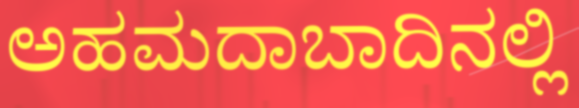
ಅಹಮದಾಬಾದಿನಲ್ಲಿ